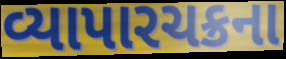
વ્યાપારચક્રના